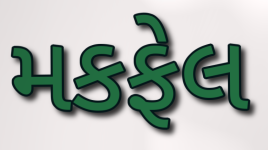
મકફેલ